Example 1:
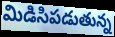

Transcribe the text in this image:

మిడిసిపడుతున్న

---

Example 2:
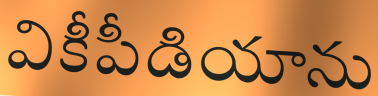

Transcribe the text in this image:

వికీపీడియాను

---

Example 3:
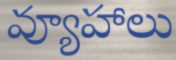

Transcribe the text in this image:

వ్యూహాలు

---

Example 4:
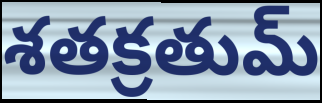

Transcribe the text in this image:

శతక్రతుమ్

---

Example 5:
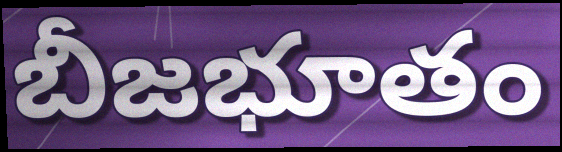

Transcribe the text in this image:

బీజభూతం